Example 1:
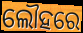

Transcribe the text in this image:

ଲୌହରେ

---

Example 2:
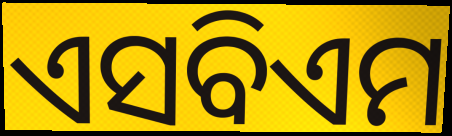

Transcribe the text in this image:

ଏସବିଏମ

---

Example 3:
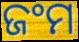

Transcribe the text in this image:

ଜଂମ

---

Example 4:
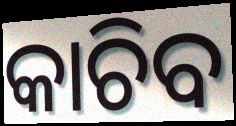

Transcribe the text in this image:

କାଚିବ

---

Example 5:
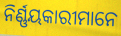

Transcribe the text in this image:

ନିର୍ଣ୍ଣୟକାରୀମାନେ